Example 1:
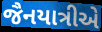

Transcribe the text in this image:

જૈનયાત્રીએ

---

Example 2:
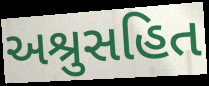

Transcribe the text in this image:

અશ્રુસહિત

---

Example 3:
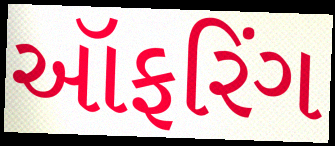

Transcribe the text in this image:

ઑફરિંગ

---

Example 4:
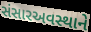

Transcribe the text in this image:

સંસારઅવસ્થાને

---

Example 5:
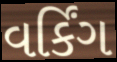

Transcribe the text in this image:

વર્કિંગ